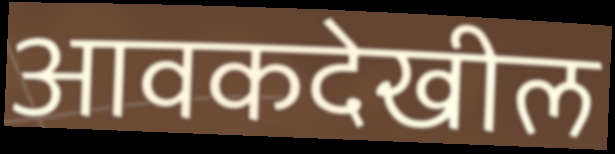
आवकदेखील